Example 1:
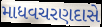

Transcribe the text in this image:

માધવચરણદાસે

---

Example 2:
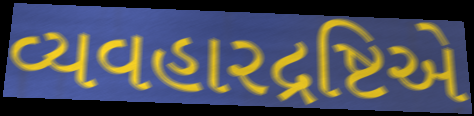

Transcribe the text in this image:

વ્યવહારદ્રષ્ટિએ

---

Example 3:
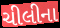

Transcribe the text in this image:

ચીલીના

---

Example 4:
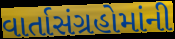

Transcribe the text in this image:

વાર્તાસંગ્રહોમાંની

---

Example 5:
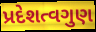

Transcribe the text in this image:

પ્રદેશત્વગુણ